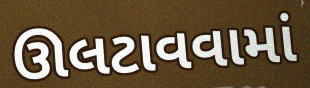
ઊલટાવવામાં